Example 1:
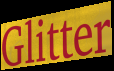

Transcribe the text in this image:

Glitter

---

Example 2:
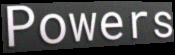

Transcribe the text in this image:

Powers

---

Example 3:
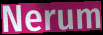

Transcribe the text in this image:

Nerum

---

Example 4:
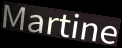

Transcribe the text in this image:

Martine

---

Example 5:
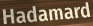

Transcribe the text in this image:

Hadamard